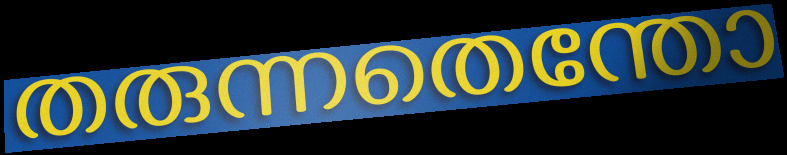
തരുന്നതെന്തോ